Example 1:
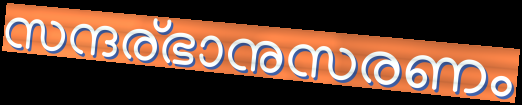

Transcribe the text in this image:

സന്ദര്ഭാനുസരണം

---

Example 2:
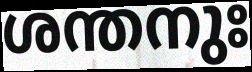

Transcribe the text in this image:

ശന്തനുഃ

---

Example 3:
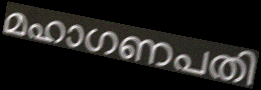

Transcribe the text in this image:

മഹാഗണപതി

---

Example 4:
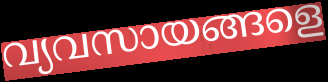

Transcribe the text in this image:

വ്യവസായങ്ങളെ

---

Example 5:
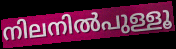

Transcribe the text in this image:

നിലനിൽപുള്ളൂ